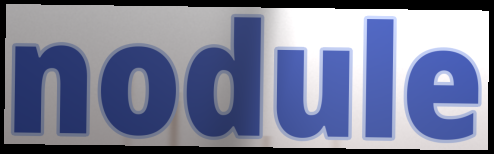
nodule